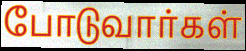
போடுவார்கள்